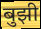
बुझी